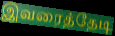
இவரைத்தேடி